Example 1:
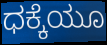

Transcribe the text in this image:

ಧಕ್ಕೆಯೂ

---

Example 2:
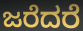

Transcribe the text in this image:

ಜರೆದರೆ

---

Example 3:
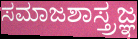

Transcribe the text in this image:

ಸಮಾಜಶಾಸ್ತ್ರಜ್ಞ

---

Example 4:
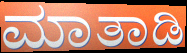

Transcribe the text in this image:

ಮಾತಾಡಿ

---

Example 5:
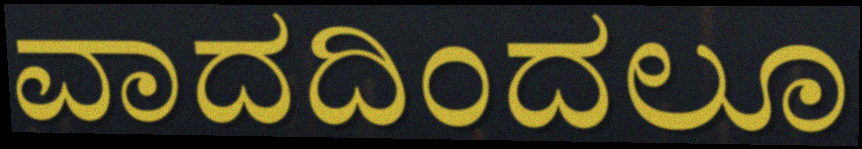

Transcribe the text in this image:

ವಾದದಿಂದಲೂ